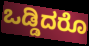
ಒಡ್ಡಿದರೊ